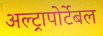
अल्ट्रापोर्टेबल